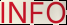
INFO